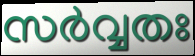
സർവ്വതഃ